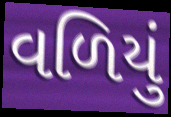
વળિયું